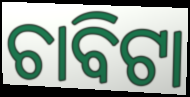
ଚାବିଟା